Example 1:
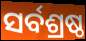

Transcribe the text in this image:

ସର୍ବଶ୍ରଷ୍ଠ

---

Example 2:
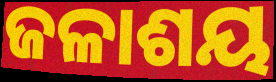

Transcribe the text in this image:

ଜଳାଶୟ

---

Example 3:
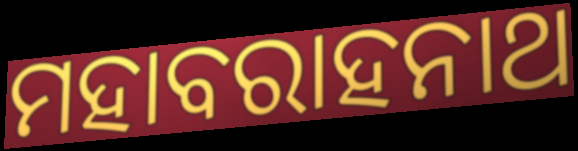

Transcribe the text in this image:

ମହାବରାହନାଥ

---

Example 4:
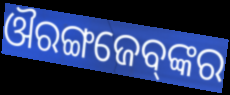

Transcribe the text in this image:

ଔରଙ୍ଗଜେବ୍‌ଙ୍କର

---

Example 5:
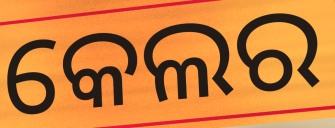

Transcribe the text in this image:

କେଲର